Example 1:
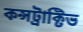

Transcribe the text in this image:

কন্সট্রাক্টিভ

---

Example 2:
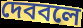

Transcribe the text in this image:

দেববলে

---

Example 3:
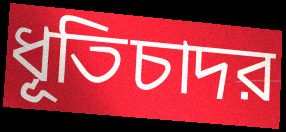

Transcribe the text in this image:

ধূতিচাদর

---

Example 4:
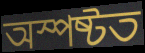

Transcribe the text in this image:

অস্পষ্টত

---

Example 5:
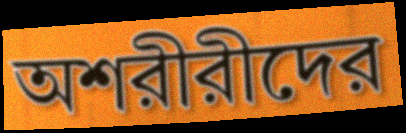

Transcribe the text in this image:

অশরীরীদের